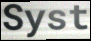
Syst